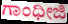
ಗಾಂಧೀಜಿ